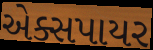
એક્સપાયર